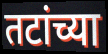
तटांच्या